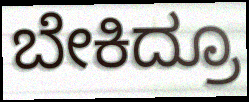
ಬೇಕಿದ್ರೂ